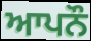
ਆਪਨੌ